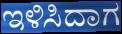
ಇಳಿಸಿದಾಗ